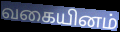
வகையினம்